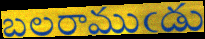
బలరాముఁడు